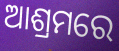
ଆଶ୍ରମରେ